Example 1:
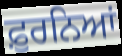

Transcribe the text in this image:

ਫ਼ੁਰਨਿਆਂ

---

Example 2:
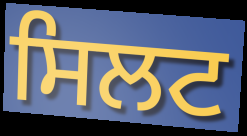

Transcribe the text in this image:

ਸਿਲਟ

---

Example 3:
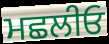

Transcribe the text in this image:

ਮਛਲੀਓ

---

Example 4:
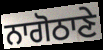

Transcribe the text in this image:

ਨਾਗੋਠਾਣੇ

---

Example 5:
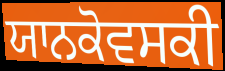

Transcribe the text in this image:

ਯਾਨਕੋਵਸਕੀ